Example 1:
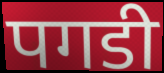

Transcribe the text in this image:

पगडी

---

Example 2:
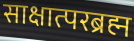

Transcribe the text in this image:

साक्षात्परब्रह्म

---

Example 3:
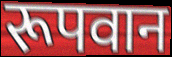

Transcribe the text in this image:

रूपवान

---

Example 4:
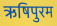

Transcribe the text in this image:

ऋषिपुरम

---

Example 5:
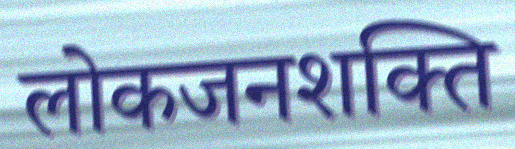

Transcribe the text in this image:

लोकजनशक्ति